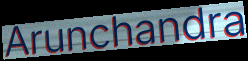
Arunchandra